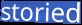
storied